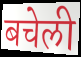
बचेली